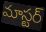
మాస్టర్